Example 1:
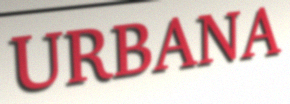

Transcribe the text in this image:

URBANA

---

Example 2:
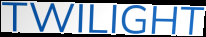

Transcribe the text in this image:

TWILIGHT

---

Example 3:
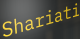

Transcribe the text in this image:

Shariati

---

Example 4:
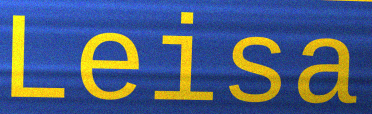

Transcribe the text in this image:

Leisa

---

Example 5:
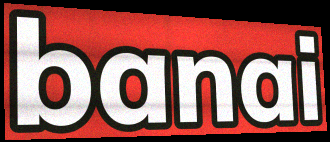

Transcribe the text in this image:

banai